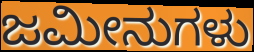
ಜಮೀನುಗಳು